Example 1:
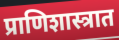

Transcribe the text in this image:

प्राणिशास्त्रात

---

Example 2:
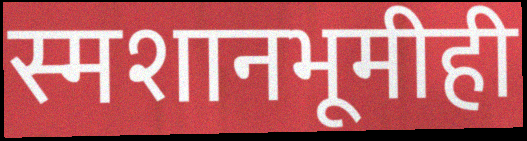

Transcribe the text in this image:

स्मशानभूमीही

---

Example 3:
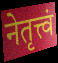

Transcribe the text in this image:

नेतृत्त्वं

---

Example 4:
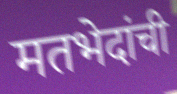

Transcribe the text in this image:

मतभेदांची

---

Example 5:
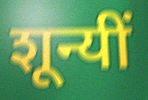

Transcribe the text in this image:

शून्यीं